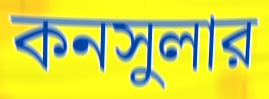
কনসুলার